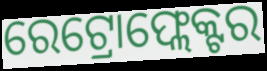
ରେଟ୍ରୋଫ୍ଲେକ୍ଟର